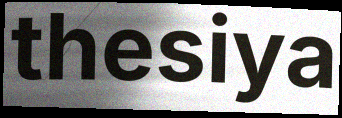
thesiya